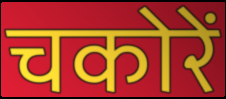
चकोरें